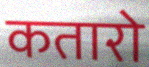
कतारो